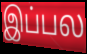
இப்பல